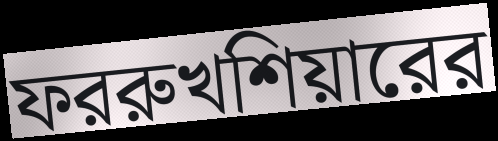
ফররুখশিয়ারের